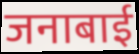
जनाबाई